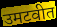
उमटवीत